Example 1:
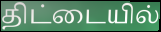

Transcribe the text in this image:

திட்டையில்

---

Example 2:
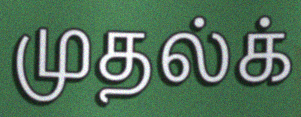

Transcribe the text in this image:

முதல்க்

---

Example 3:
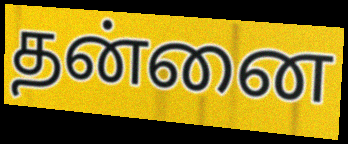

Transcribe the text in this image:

தன்னை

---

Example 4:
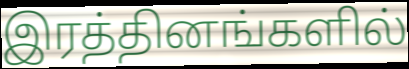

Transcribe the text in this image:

இரத்தினங்களில்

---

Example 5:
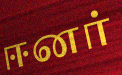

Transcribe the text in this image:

ஈனர்